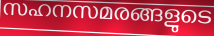
സഹനസമരങ്ങളുടെ